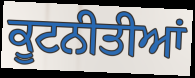
ਕੂਟਨੀਤੀਆਂ